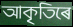
আকৃতিৰে